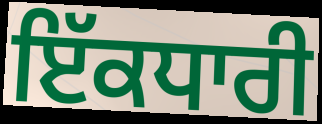
ਇੱਕਧਾਰੀ